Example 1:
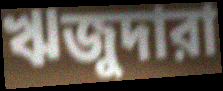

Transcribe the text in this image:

ঋজুদারা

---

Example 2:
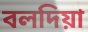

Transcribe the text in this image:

বলদিয়া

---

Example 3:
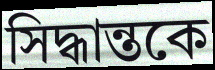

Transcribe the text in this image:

সিদ্ধান্তকে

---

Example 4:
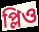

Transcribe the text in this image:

প্লিও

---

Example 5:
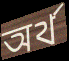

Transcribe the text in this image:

অর্থ